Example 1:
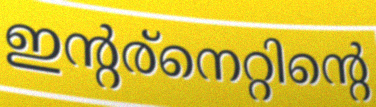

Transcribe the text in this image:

ഇന്റര്നെറ്റിന്റെ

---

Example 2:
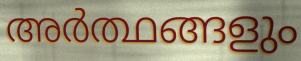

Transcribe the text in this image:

അർത്ഥങ്ങളും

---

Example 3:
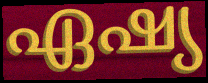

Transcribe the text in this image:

ഏഷ്യ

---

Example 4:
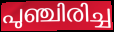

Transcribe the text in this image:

പുഞ്ചിരിച്ച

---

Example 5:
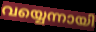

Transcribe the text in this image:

വയ്യെന്നായി